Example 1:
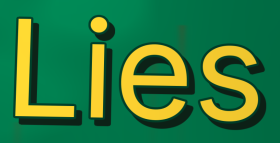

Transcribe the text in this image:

Lies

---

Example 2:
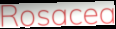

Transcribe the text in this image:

Rosacea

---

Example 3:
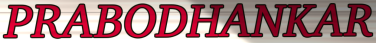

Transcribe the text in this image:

PRABODHANKAR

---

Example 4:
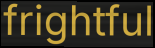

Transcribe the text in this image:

frightful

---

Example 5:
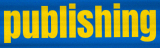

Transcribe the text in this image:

publishing